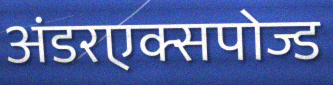
अंडरएक्सपोज्ड